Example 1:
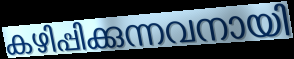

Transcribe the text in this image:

കഴിപ്പിക്കുന്നവനായി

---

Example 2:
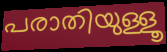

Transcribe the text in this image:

പരാതിയുള്ളൂ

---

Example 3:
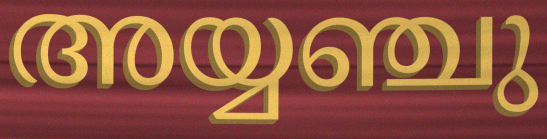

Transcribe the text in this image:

അയ്യഞ്ചു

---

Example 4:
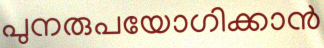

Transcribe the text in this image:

പുനരുപയോഗിക്കാൻ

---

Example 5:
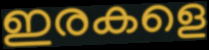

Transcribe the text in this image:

ഇരകളെ